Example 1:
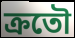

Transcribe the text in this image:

ক্রতৌ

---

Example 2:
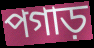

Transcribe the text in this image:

পগাড়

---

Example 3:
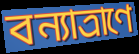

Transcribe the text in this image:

বন্যাত্রাণে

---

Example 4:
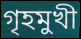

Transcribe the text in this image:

গৃহমুখী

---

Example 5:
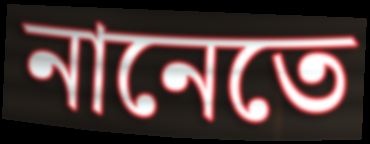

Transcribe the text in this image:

নানেতে